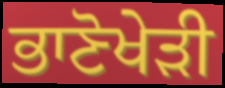
ਭਾਣੋਖੇੜੀ